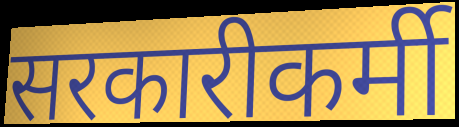
सरकारीकर्मी